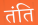
तंति